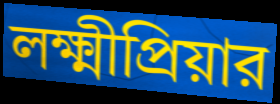
লক্ষ্মীপ্রিয়ার